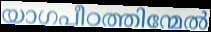
യാഗപീഠത്തിന്മേൽ